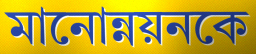
মানোন্নয়নকে